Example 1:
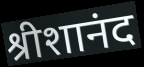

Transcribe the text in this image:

श्रीशानंद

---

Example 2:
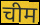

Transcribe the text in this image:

चीम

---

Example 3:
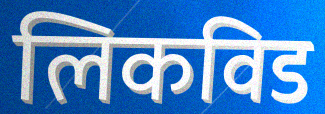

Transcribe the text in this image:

लिकविड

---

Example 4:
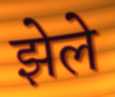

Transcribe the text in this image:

झेले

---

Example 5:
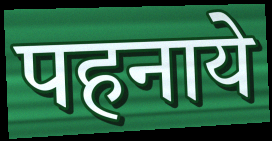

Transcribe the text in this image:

पहनाये